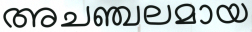
അചഞ്ചലമായ